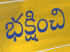
భక్షించి